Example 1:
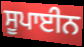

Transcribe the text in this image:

ਸੂਪਾਈਨ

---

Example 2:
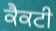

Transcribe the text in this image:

ਕੈਕਟੀ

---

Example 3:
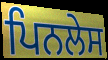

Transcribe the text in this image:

ਪਿਨਲੇਸ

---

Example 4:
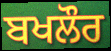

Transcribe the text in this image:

ਬਖਲੌਰ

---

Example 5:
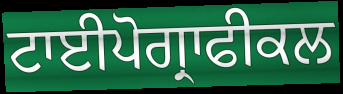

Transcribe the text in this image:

ਟਾਈਪੋਗ੍ਰਾਫੀਕਲ